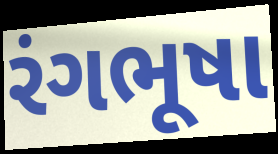
રંગભૂષા